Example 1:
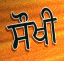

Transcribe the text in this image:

ਸੌਖੀ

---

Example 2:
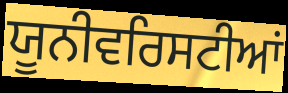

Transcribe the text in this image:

ਯੂਨੀਵਰਿਸਟੀਆਂ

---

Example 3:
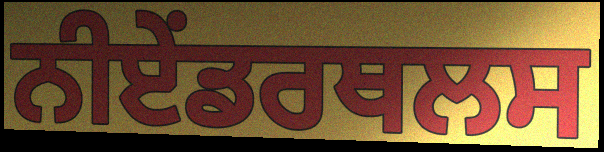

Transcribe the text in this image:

ਨੀਏਂਡਰਥਲਸ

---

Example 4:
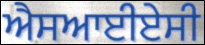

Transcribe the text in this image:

ਐਸਆਈਏਸੀ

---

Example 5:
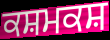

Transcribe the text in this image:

ਕਸ਼ਮਕਸ਼